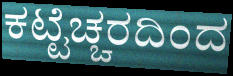
ಕಟ್ಟೆಚ್ಚರದಿಂದ